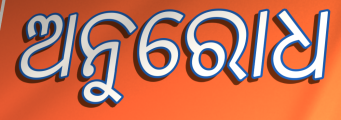
ଅନୁରୋଧ